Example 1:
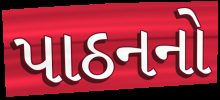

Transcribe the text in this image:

પાઠનનો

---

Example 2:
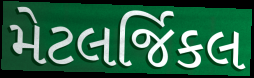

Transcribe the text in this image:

મેટલર્જિકલ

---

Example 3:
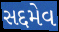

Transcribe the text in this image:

સદ્દમેવ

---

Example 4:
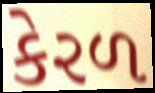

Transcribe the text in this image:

કેરળ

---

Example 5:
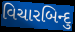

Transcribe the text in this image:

વિચારબિન્દુ